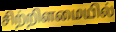
சிற்றிளமையில்